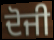
ਦੋਜੀ